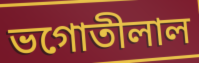
ভগোতীলাল